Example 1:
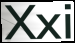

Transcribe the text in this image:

Xxi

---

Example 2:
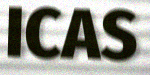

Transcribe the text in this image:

ICAS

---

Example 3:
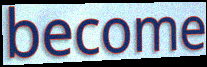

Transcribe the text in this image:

become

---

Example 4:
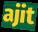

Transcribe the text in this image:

ajit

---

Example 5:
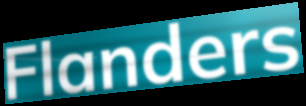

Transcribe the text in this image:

Flanders